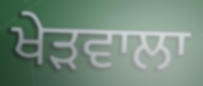
ਖੇੜਵਾਲਾ